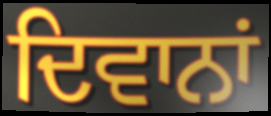
ਦਿਵਾਨਾਂ